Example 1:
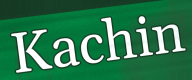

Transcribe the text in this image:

Kachin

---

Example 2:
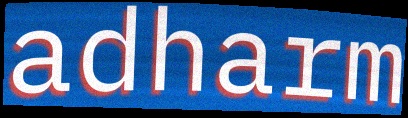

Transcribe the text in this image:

adharm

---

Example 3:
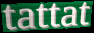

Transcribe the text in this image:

tattat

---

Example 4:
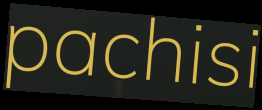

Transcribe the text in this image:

pachisi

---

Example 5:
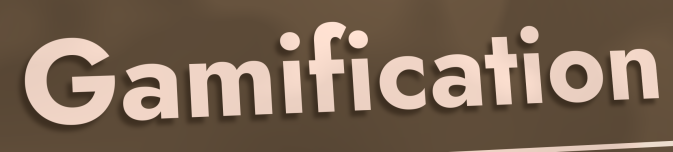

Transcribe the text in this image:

Gamification